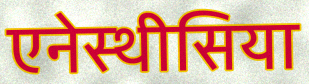
एनेस्थीसिया